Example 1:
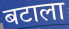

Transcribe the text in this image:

बटाला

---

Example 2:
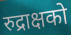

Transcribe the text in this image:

रुद्राक्षको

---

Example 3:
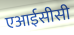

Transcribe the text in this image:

एआईसीसी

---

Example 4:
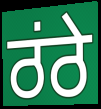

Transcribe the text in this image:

ठंठे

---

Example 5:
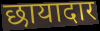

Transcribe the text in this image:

छायादार